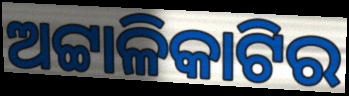
ଅଟ୍ଟାଳିକାଟିର